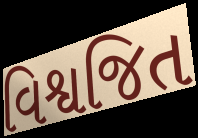
વિશ્વજિત